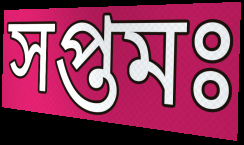
সপ্তমঃ